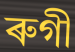
ৰুগী